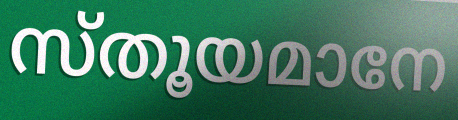
സ്തൂയമാനേ